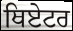
ਥਿਏਟਰ